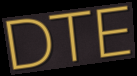
DTE